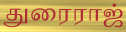
துரைராஜ்